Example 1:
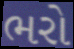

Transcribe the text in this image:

ભરો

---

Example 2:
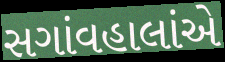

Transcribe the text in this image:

સગાંવહાલાંએ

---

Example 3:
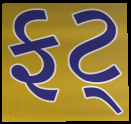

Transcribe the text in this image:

ફટ્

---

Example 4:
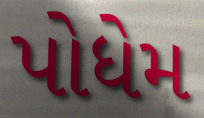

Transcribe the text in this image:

પોધેમ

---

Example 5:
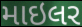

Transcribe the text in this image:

માઇલર